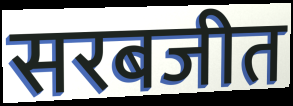
सरबजीत